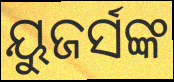
ୟୁଜର୍ସଙ୍କ